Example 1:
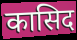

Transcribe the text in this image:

कासिद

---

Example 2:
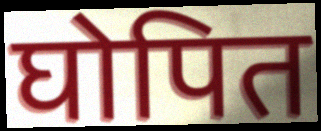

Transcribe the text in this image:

घोपित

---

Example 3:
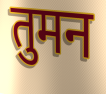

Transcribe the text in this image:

तुमन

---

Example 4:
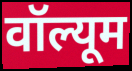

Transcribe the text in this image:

वॉल्यूम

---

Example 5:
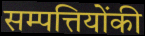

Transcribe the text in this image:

सम्पत्तियोंकी